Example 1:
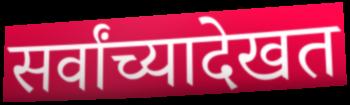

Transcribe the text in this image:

सर्वांच्यादेखत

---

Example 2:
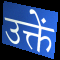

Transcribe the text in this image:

उक्तें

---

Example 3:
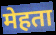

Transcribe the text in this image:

मेहता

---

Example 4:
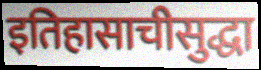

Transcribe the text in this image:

इतिहासाचीसुद्धा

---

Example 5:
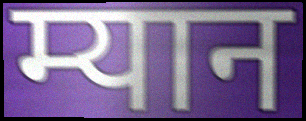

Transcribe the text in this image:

म्यान